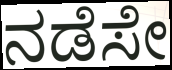
ನಡೆಸೇ